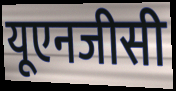
यूएनजीसी